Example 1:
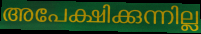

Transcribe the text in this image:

അപേക്ഷിക്കുന്നില്ല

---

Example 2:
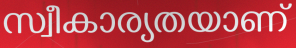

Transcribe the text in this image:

സ്വീകാര്യതയാണ്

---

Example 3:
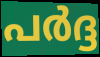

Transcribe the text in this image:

പർദ്ദ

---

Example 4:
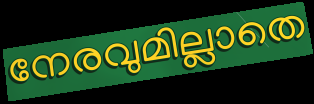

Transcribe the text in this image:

നേരവുമില്ലാതെ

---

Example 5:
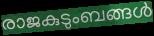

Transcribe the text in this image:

രാജകുടുംബങ്ങൾ